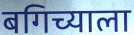
बगिच्याला